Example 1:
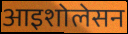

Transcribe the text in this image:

आइशोलेसन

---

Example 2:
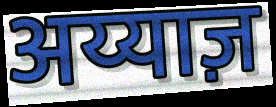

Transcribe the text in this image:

अय्याज़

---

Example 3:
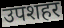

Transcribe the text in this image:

उपशहर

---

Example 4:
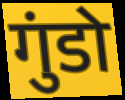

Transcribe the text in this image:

गुंडो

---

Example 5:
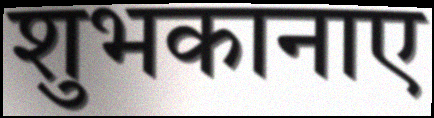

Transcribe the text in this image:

शुभकानाए